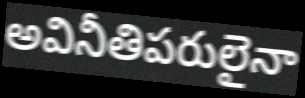
అవినీతిపరులైనా